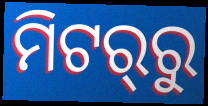
ମିଟର୍‍ରୁ